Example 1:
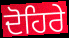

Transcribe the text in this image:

ਦੋਹਿਰੇ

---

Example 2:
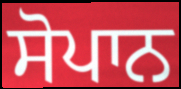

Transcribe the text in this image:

ਸੋਪਾਨ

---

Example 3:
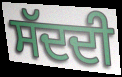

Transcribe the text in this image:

ਸੱਦਦੀ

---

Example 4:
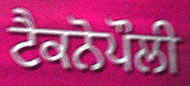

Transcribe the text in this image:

ਟੈਕਨੋਪੌਲੀ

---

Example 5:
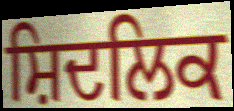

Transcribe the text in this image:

ਸ਼ਿਦਲਿਕ